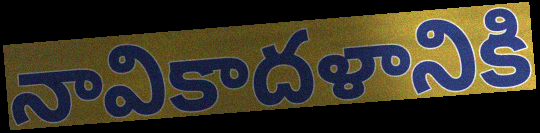
నావికాదళానికి